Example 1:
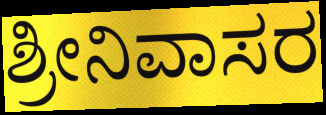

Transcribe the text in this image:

ಶ್ರೀನಿವಾಸರ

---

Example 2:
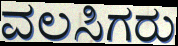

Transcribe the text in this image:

ವಲಸಿಗರು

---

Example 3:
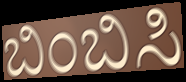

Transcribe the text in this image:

ಬಿಂಬಿಸಿ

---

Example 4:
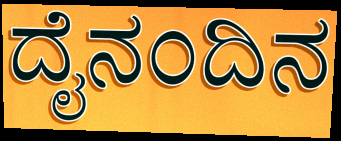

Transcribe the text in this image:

ದೈನಂದಿನ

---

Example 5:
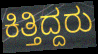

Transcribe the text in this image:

ಕಿತ್ತಿದ್ದರು